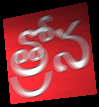
త్రోన